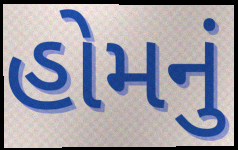
હોમનું